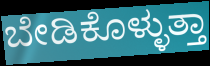
ಬೇಡಿಕೊಳ್ಳುತ್ತಾ